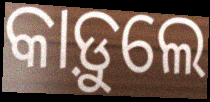
କାଡ଼ୁଲେ